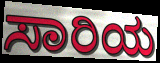
ಸಾರಿಯ